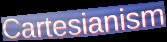
Cartesianism